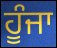
ਹੂੰਜਾ